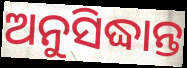
ଅନୁସିଦ୍ଧାନ୍ତ